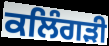
ਕਲਿੰਗੜੀ